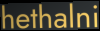
hethalni